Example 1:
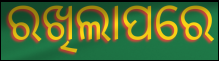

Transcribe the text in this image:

ରଖିଲାପରେ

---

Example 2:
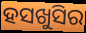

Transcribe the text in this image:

ହସଖୁସିର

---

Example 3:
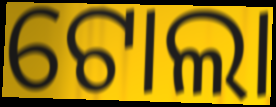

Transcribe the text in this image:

ଟୋଲା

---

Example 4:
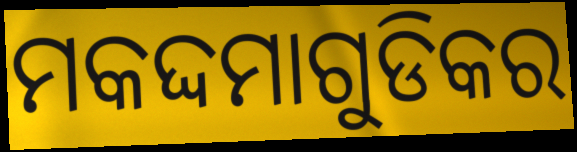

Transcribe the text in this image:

ମକଦ୍ଦମାଗୁଡିକର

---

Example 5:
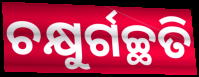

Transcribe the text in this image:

ଚକ୍ଷୁର୍ଗଚ୍ଛତି